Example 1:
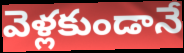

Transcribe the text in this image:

వెళ్లకుండానే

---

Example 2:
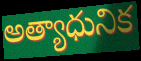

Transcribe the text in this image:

అత్యాధునిక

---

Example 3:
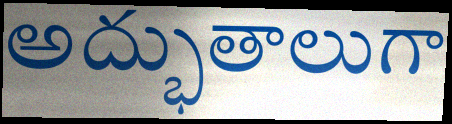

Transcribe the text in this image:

అద్భుతాలుగా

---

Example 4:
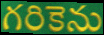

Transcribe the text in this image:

గరికెను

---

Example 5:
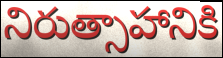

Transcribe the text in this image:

నిరుత్సాహానికి